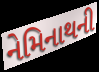
નેમિનાથની